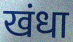
खंधा